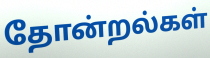
தோன்றல்கள்